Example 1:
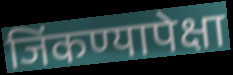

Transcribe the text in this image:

जिंकण्यापेक्षा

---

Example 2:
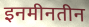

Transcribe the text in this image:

इनमीनतीन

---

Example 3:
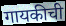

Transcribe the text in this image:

गायकीची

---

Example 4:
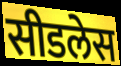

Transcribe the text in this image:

सीडलेस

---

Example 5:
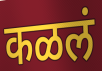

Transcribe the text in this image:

कळलं